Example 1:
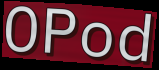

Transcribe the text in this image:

OPod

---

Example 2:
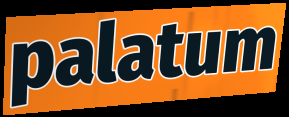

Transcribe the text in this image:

palatum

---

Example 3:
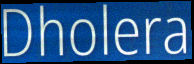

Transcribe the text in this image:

Dholera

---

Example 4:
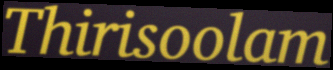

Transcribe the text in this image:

Thirisoolam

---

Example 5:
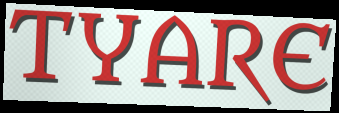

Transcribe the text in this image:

TYARE